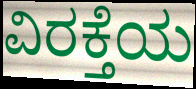
ವಿರಕ್ತೆಯ